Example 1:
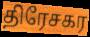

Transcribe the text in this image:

திரேசகர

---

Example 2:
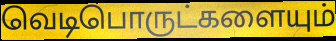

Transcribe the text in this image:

வெடிபொருட்களையும்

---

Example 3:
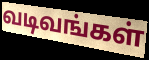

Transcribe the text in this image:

வடிவங்கள்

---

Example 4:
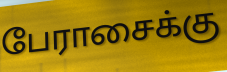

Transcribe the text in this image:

பேராசைக்கு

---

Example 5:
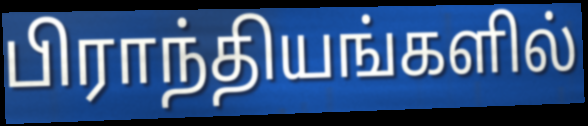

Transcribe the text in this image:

பிராந்தியங்களில்